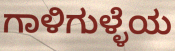
ಗಾಳಿಗುಳ್ಳೆಯ